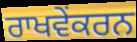
ਰਾਖਵੇਂਕਰਨ